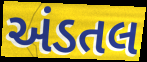
અંડતલ